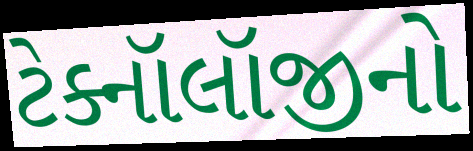
ટેક્નૉલૉજીનો